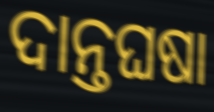
ଦାନ୍ତଘଷା